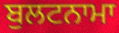
ਬੁਲਟਨਾਮਾ